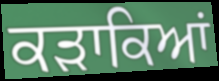
ਕੜਾਕਿਆਂ